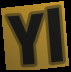
Yl